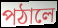
পঠালে